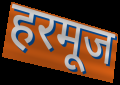
हरमूज